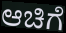
ಆಚಿಗೆ